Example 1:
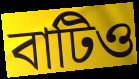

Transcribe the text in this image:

বাটিও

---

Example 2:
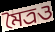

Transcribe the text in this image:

মৈত্রও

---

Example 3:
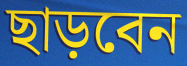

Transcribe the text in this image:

ছাড়বেন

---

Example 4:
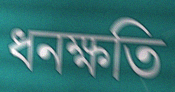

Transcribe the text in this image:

ধনক্ষতি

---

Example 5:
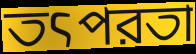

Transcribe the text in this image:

তৎপরতা